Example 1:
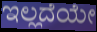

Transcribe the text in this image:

ಇಲ್ಲದೆಯೇ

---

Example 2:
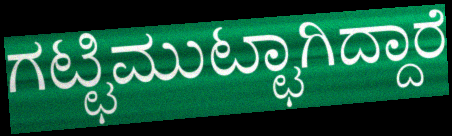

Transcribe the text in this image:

ಗಟ್ಟಿಮುಟ್ಟಾಗಿದ್ದಾರೆ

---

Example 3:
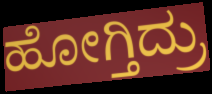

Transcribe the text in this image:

ಹೋಗ್ತಿದ್ರು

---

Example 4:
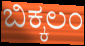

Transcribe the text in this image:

ಬಿಕ್ಕಲಂ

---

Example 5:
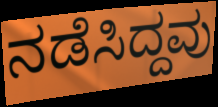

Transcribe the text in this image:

ನಡೆಸಿದ್ದವು